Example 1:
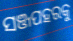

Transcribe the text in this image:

ସଞ୍ଜପହରକୁ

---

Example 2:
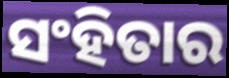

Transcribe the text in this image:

ସଂହିତାର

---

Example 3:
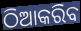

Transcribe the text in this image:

ଠିଆକରିବ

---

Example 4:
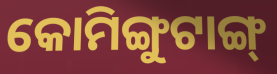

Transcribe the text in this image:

କୋମିଙ୍ଗୁଟାଙ୍ଗ୍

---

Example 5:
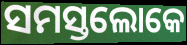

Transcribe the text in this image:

ସମସ୍ତଲୋକେ